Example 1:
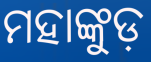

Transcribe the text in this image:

ମହାଙ୍କୁଡ଼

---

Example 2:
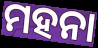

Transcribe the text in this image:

ମହନା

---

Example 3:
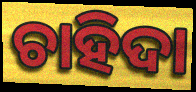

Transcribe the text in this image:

ଚାହିଦା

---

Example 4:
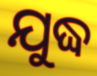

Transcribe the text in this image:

ଯୁଦ୍ଧ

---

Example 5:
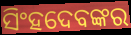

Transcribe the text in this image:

ସିଂହଦେବଙ୍କର